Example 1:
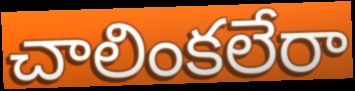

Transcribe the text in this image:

చాలింకలేరా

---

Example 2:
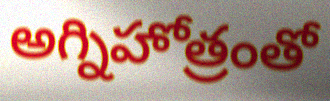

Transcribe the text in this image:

అగ్నిహోత్రంతో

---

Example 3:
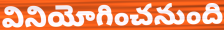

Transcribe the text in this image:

వినియోగించనుంది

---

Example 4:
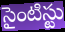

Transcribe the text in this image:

సైంటిస్టు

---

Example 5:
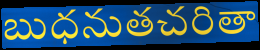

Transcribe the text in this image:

బుధనుతచరితా